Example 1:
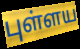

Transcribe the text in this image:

புள்ளய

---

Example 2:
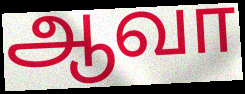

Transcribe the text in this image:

ஆவா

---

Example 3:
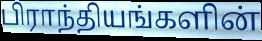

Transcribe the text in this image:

பிராந்தியங்களின்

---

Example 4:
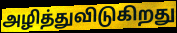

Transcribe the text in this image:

அழித்துவிடுகிறது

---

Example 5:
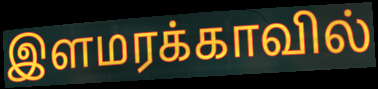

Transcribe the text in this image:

இளமரக்காவில்